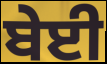
ਬੇਈ